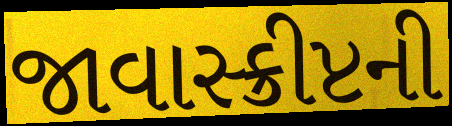
જાવાસ્ક્રીપ્ટની